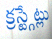
క్రస్ట్గేట్లు